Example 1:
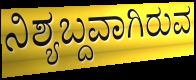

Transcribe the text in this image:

ನಿಶ್ಯಬ್ದವಾಗಿರುವ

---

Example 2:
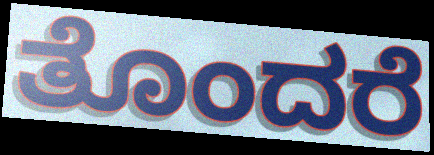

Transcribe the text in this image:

ತೊಂದರೆ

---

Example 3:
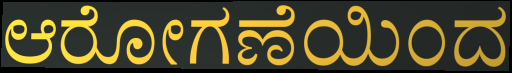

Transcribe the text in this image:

ಆರೋಗಣೆಯಿಂದ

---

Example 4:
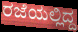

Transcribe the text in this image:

ರಜೆಯಲ್ಲಿದ್ದ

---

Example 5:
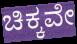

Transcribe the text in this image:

ಚಿಕ್ಕವೇ